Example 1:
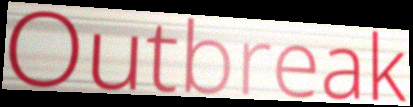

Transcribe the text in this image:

Outbreak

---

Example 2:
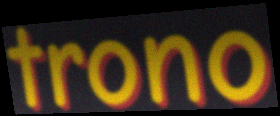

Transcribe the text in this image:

trono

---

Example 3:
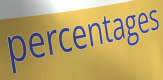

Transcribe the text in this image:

percentages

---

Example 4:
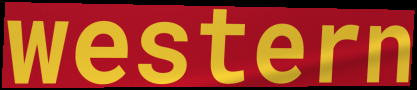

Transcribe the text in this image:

western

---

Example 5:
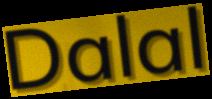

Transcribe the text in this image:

Dalal